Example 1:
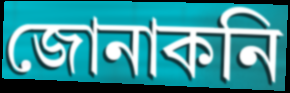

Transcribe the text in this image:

জোনাকনি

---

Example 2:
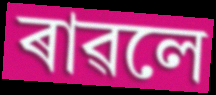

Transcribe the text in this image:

ৰাৱলে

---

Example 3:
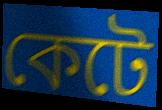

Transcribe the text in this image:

কেটে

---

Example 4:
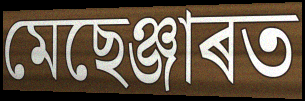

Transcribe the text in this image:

মেছেঞ্জাৰত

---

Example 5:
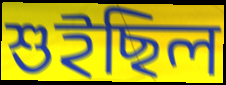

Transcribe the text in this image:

শুইছিল